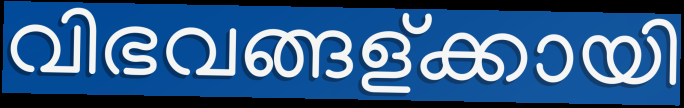
വിഭവങ്ങള്ക്കായി